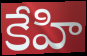
కేహి